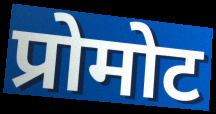
प्रोमोट